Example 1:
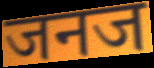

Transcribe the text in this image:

जनज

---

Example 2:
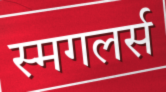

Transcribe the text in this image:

स्‍मगलर्स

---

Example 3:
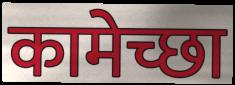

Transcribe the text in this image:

कामेच्छा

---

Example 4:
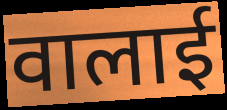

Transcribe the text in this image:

वालाई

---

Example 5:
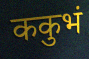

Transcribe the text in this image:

ककुभं